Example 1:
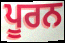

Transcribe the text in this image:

ਪੂਰਨ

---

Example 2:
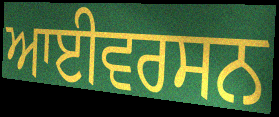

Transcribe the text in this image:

ਆਈਵਰਸਨ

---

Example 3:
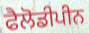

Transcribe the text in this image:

ਫੈਲੋਡੀਪੀਨ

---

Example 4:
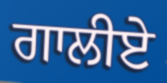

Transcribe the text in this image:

ਗਾਲੀਏ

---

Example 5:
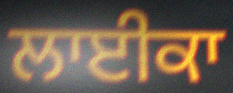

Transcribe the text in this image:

ਲਾਈਕਾ